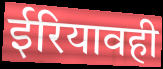
ईरियावही